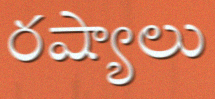
రష్యాలు